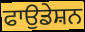
ਫਾਉਡੇਸ਼ਨ